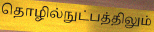
தொழில்நுட்பத்திலும்